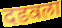
दडवला